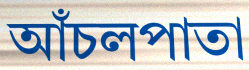
আঁচলপাতা